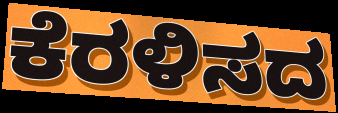
ಕೆರಳಿಸದ